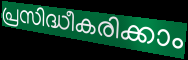
പ്രസിദ്ധീകരിക്കാം